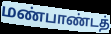
மண்பாண்டத்